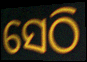
ସେଠି